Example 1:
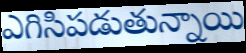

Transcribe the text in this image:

ఎగిసిపడుతున్నాయి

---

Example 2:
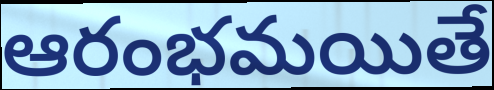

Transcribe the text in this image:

ఆరంభమయితే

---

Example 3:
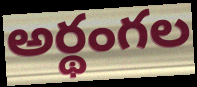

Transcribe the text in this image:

అర్థంగల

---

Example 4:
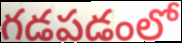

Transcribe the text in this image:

గడపడంలో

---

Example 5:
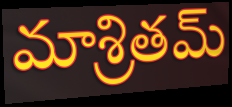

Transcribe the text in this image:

మాశ్రితమ్